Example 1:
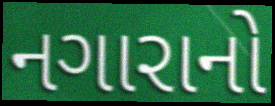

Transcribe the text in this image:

નગારાનો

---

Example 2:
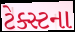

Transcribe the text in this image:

ટેક્સ્ટના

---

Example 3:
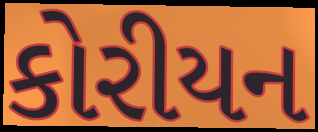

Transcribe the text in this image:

કોરીયન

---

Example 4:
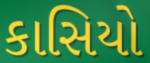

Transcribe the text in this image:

કાસિયો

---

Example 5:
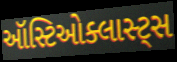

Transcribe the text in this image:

ઑસ્ટિઓક્લાસ્ટ્સ